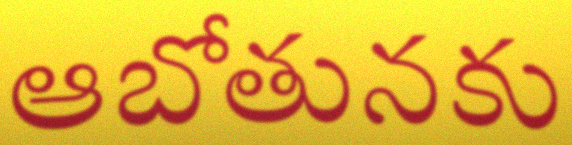
ఆబోతునకు